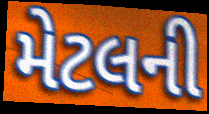
મેટલની